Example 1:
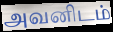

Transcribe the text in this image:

அவனிடம்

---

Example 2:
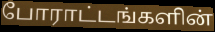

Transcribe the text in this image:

போராட்டங்களின்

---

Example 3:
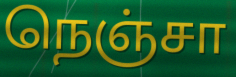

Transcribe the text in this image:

நெஞ்சா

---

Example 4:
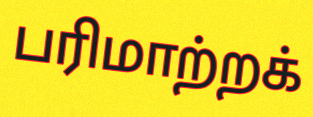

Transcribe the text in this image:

பரிமாற்றக்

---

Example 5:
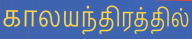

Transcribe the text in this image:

காலயந்திரத்தில்